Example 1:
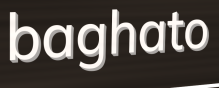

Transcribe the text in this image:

baghato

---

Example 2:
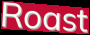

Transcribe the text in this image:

Roast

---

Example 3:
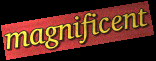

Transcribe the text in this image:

magnificent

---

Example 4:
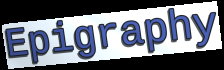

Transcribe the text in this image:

Epigraphy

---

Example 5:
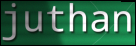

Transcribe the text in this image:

juthan